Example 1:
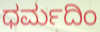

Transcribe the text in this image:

ಧರ್ಮದಿಂ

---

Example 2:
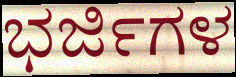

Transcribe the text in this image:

ಭರ್ಜಿಗಳ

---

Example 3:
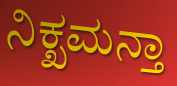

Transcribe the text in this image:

ನಿಕ್ಖಮನ್ತಾ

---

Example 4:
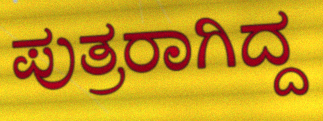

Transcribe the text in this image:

ಪುತ್ರರಾಗಿದ್ದ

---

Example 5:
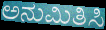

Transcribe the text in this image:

ಅನುಮಿತಿಸಿ